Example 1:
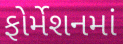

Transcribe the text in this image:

ફોર્મેશનમાં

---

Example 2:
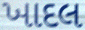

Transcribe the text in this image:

ખાદલ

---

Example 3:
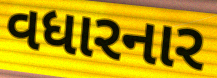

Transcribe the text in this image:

વધારનાર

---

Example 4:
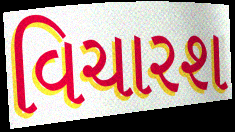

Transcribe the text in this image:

વિચારશ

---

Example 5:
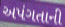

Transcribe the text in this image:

અપંગતાની